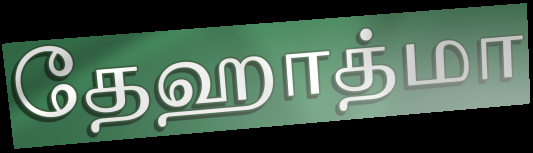
தேஹாத்மா